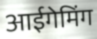
आईगेमिंग